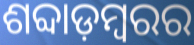
ଶବ୍ଦାଡ଼ମ୍ବରର